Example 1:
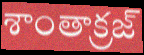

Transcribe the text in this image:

శాంతాక్రజ్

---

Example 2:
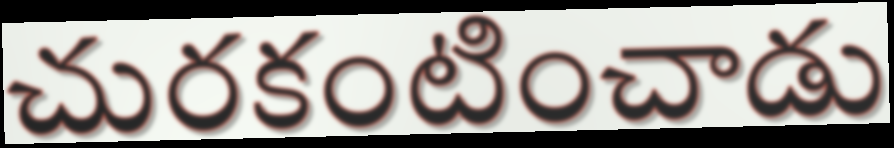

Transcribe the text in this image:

చురకంటించాడు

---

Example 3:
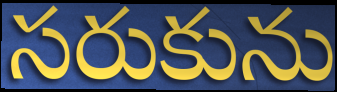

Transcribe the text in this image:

సరుకును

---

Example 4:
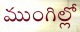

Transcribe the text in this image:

ముంగిల్లో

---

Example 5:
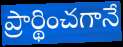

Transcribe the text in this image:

ప్రార్థించగానే